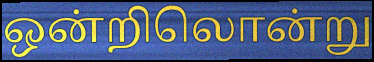
ஒன்றிலொன்று